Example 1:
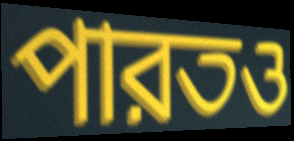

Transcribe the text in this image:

পারতও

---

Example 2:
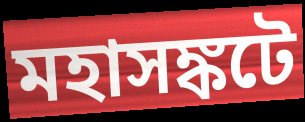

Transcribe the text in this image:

মহাসঙ্কটে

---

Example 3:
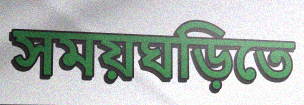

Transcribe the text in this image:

সময়ঘড়িতে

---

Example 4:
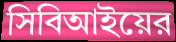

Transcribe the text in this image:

সিবিআইয়ের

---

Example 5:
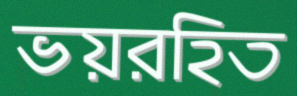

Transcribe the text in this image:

ভয়রহিত